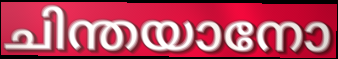
ചിന്തയാനോ